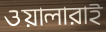
ওয়ালারাই